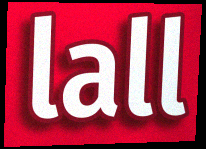
lall